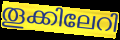
തൂക്കിലേറി